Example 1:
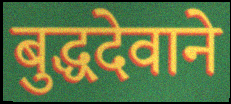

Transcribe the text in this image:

बुद्धदेवाने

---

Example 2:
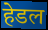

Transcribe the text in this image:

हेडल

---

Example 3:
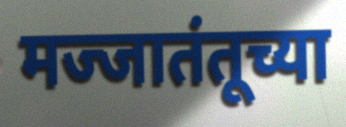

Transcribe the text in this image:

मज्जातंतूच्या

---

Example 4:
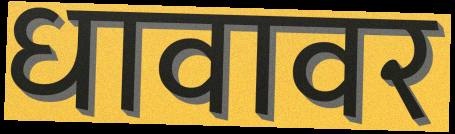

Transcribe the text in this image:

धावावर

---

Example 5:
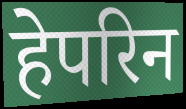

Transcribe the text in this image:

हेपरिन